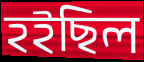
হইছিল